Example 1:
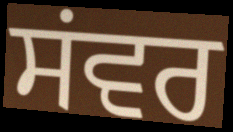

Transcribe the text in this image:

ਸਂਵਰ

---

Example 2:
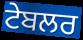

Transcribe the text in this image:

ਟੇਬਲਰ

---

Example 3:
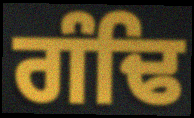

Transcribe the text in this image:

ਗੰਢਿ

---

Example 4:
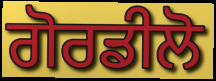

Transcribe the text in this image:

ਗੋਰਡੀਲੋ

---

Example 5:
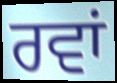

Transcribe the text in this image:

ਰਵਾਂ